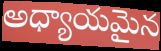
అధ్యాయమైన